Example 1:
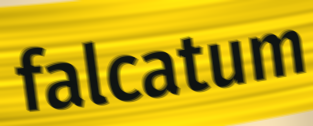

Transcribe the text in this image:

falcatum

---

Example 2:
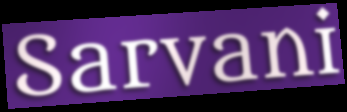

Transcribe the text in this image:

Sarvani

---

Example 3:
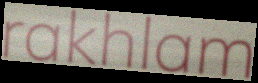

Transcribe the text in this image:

rakhlam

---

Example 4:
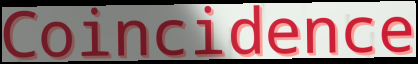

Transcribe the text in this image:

Coincidence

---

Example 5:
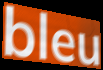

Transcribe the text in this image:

bleu